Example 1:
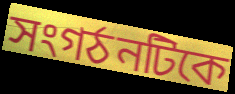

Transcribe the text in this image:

সংগঠনটিকে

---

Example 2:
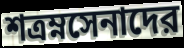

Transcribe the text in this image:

শত্রম্নসেনাদের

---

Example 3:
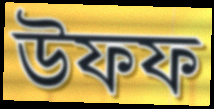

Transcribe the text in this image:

উফফ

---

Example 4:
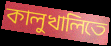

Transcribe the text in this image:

কালুখালিতে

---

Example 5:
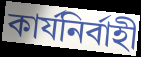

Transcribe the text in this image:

কার্যনির্বাহী